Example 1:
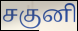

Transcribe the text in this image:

சகுனி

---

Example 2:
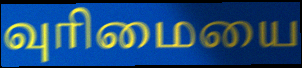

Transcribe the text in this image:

வுரிமையை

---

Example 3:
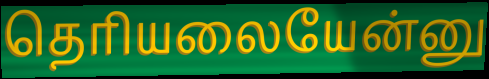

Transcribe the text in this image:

தெரியலையேன்னு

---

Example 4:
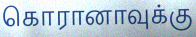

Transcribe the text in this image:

கொரானாவுக்கு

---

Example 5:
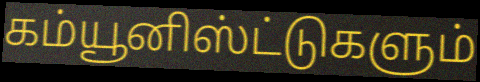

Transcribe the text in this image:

கம்யூனிஸ்ட்டுகளும்